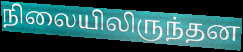
நிலையிலிருந்தன